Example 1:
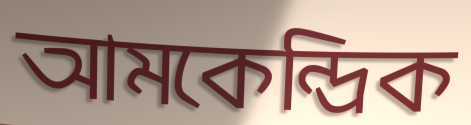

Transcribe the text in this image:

আমকেন্দ্রিক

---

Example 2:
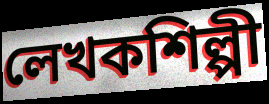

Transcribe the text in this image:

লেখকশিল্পী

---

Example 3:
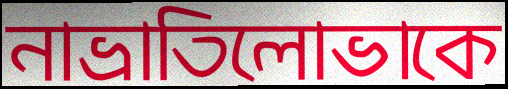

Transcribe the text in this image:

নাভ্রাতিলোভাকে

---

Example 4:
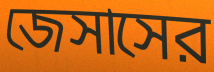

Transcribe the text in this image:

জেসাসের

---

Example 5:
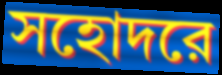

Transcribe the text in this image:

সহোদরে